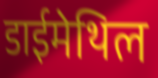
डाईमेथिल